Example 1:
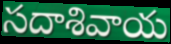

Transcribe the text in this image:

సదాశివాయ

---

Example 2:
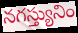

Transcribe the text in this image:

నగస్త్యునిం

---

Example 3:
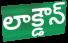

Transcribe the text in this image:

లాక్డౌన్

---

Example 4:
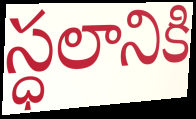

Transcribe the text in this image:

స్ధలానికి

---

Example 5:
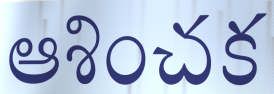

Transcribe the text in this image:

ఆశించక